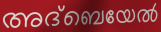
അദ്ബെയേൽ